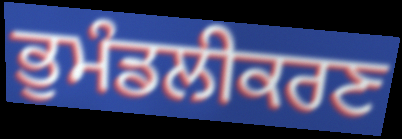
ਭੁਮੰਡਲੀਕਰਣ